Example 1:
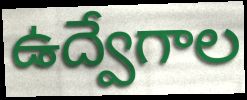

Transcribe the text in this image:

ఉద్వేగాల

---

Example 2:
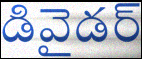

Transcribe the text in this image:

డివైడర్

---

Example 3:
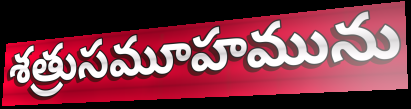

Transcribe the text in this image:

శత్రుసమూహమును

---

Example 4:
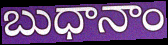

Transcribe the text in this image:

బుధానాం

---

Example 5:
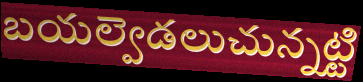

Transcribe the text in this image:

బయల్వెడలుచున్నట్టి